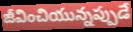
జీవించియున్నప్పుడే